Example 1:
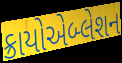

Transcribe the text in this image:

ક્રાયોએબ્લેશન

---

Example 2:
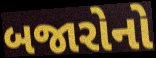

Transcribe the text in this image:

બજારોનો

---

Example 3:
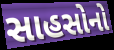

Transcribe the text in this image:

સાહસોનો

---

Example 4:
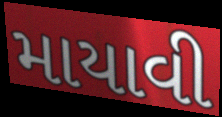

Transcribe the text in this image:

માયાવી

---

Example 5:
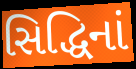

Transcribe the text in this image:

સિદ્ધિનાં